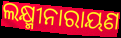
ଲକ୍ଷ୍ମୀନାରାୟଣ